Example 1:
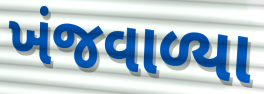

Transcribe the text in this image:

ખંજવાળ્યા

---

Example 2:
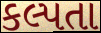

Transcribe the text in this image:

કલ્પતા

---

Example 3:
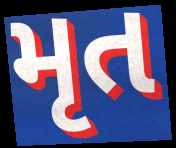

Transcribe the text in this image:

મૃત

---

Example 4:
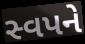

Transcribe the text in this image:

સ્વપને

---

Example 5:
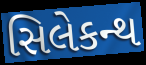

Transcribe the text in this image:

સિલેકન્થ